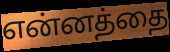
என்னத்தை